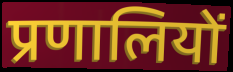
प्रणालियों